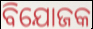
ବିଯୋଜକ